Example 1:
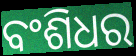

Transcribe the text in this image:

ବଂଶିଧର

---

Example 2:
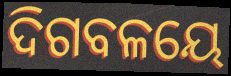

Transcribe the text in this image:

ଦିଗବଳୟେ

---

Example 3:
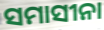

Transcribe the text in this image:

ସମାସୀନା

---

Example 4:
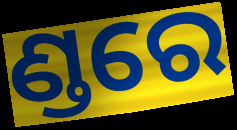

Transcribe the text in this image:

ଣ୍ଡରେ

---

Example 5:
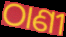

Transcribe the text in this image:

ଠାଣୀ